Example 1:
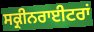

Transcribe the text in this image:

ਸਕ੍ਰੀਨਰਾਈਟਰਾਂ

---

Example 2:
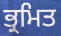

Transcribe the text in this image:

ਭ੍ਰਮਿਤ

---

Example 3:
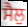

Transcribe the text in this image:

ਸੈਲੁ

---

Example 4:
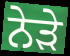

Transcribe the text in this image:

ਨੇਡ਼ੇ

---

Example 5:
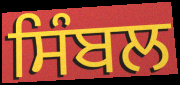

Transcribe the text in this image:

ਸਿੰਬਲ